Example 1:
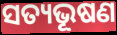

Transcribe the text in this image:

ସତ୍ୟଭୂଷଣ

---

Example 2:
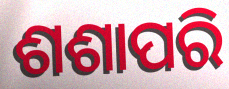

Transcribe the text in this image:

ଶଶାପରି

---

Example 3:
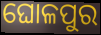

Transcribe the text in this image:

ଘୋଳପୁର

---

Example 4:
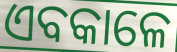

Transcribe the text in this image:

ଏବକାଳେ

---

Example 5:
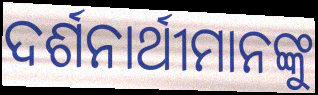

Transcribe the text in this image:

ଦର୍ଶନାର୍ଥୀମାନଙ୍କୁ